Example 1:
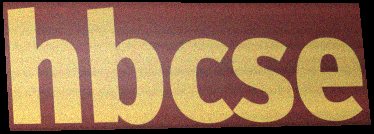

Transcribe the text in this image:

hbcse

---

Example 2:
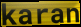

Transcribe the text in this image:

karan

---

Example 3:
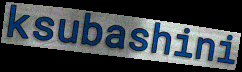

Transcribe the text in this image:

ksubashini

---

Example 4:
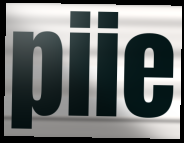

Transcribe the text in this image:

piie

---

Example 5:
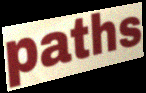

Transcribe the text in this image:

paths